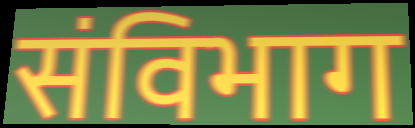
संविभाग